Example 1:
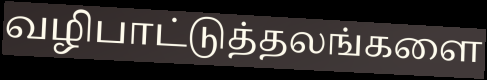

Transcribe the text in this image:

வழிபாட்டுத்தலங்களை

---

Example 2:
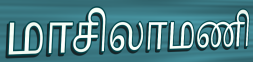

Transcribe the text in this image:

மாசிலாமணி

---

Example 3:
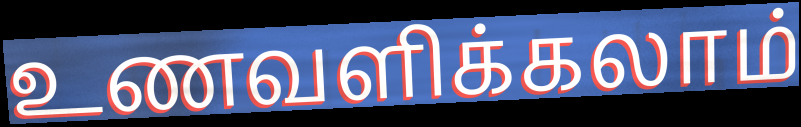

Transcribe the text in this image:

உணவளிக்கலாம்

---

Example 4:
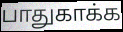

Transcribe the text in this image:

பாதுகாக்க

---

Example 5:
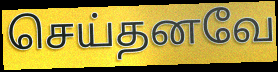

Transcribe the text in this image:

செய்தனவே